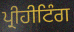
ਪ੍ਰੀਹੀਟਿੰਗ